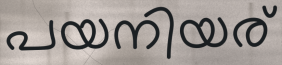
പയനിയര്